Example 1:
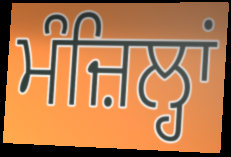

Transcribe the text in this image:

ਮੰਜ਼ਿਲ੍ਹਾਂ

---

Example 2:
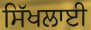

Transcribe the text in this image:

ਸਿੱਖਲਾਈ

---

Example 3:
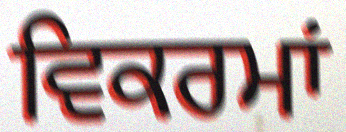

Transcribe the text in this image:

ਵਿਕਰਮਾਂ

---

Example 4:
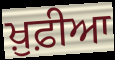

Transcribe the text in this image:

ਖ਼ੁਫ਼ੀਆ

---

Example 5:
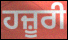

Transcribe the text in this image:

ਹਜ਼ੂਰੀ